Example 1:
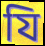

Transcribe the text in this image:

যি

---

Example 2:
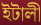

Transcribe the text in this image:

ইটালী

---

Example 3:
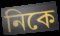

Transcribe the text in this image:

নিকে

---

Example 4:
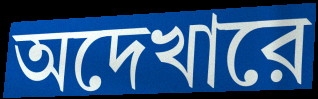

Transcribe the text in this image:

অদেখারে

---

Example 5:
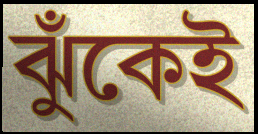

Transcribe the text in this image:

ঝুঁকেই